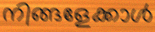
നിങ്ങളേക്കാൾ